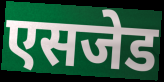
एसजेड